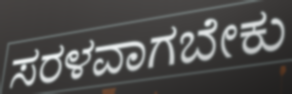
ಸರಳವಾಗಬೇಕು